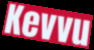
Kevvu